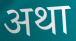
अथा